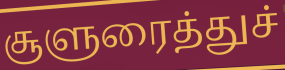
சூளுரைத்துச்